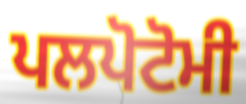
ਪਲਪੋਟੋਮੀ